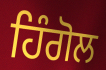
ਹਿੰਗੋਲ